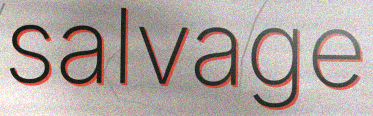
salvage